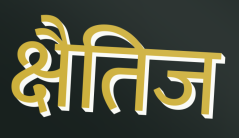
क्षैतिज